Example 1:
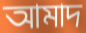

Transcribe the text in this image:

আমাদ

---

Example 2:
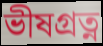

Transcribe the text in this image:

ভীষগ্ৰত্ন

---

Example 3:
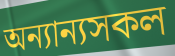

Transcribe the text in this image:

অন্যান্যসকল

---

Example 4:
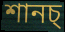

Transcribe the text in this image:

শানচ্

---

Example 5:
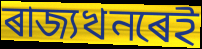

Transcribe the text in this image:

ৰাজ্যখনৰেই